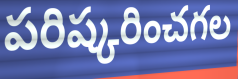
పరిష్కరించగల